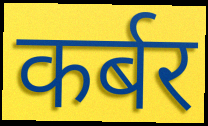
कर्बर